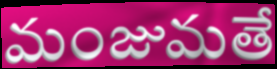
మంజుమతే